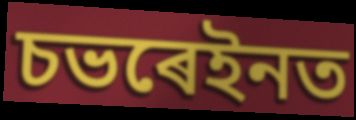
চভৰেইনত